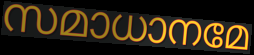
സമാധാനമേ